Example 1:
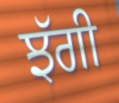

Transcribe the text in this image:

ਝੱਗੀ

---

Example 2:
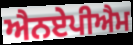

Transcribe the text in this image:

ਐਨਏਪੀਐਮ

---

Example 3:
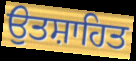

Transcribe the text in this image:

ਉੁਤਸ਼ਾਹਿਤ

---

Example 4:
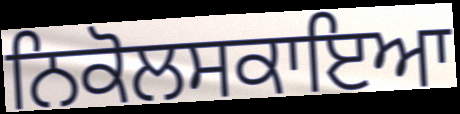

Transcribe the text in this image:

ਨਿਕੋਲਸਕਾਇਆ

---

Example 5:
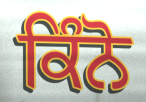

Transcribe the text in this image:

ਕਿੰਨੋ